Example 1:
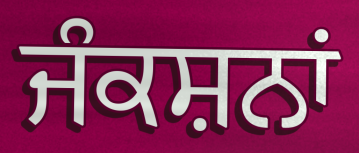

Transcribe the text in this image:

ਜੰਕਸ਼ਨਾਂ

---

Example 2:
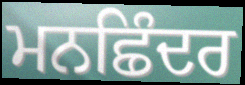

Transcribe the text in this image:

ਮਨਛਿੰਦਰ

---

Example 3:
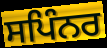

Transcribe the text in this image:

ਸਪਿੰਨਰ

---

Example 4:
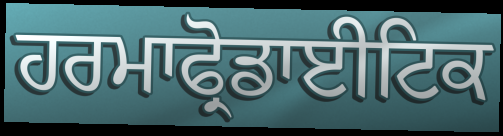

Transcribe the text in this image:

ਹਰਮਾਫ੍ਰੋਡਾਈਟਿਕ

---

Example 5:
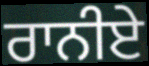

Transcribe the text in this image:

ਰਾਨੀਏ